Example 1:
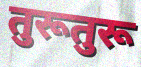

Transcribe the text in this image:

तुरूतुरू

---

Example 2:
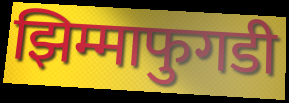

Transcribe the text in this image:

झिम्माफुगडी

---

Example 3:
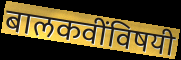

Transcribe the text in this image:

बालकवींविषयी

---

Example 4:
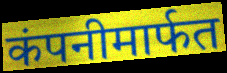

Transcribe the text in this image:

कंपनीमार्फत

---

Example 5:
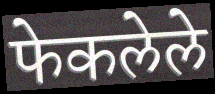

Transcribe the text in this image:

फेकलेले